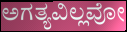
ಅಗತ್ಯವಿಲ್ಲವೋ